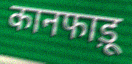
कानफाड़ू